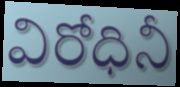
విరోధినీ